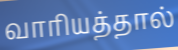
வாரியத்தால்